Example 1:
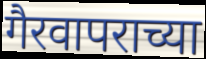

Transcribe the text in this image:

गैरवापराच्या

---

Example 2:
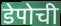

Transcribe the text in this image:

डेपोची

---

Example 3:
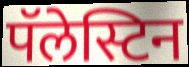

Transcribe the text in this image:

पॅलेस्टिन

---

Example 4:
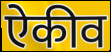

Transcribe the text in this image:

ऐकीव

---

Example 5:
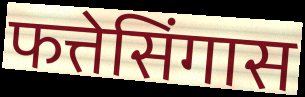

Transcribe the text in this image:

फत्तेसिंगास